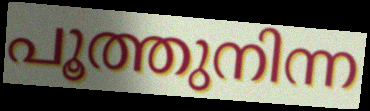
പൂത്തുനിന്ന